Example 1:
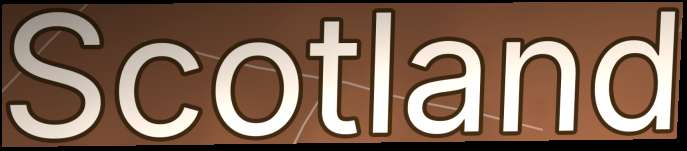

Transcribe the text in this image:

Scotland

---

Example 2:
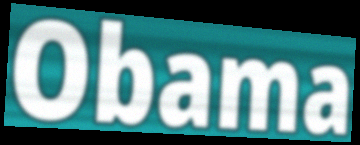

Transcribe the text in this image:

Obama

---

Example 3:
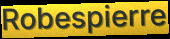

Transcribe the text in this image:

Robespierre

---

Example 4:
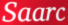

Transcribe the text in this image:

Saarc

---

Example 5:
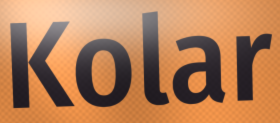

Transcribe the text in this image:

Kolar